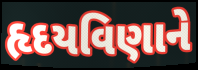
હૃદયવિણાને